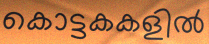
കൊട്ടകകളിൽ